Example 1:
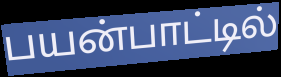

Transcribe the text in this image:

பயன்பாட்டில்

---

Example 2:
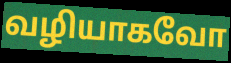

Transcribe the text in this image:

வழியாகவோ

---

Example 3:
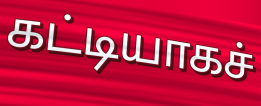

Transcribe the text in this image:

கட்டியாகச்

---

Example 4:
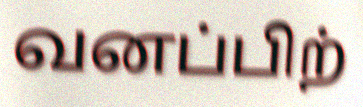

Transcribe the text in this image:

வனப்பிற்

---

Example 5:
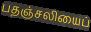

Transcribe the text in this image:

பதஞ்சலியைப்